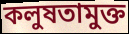
কলুষতামুক্ত